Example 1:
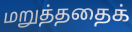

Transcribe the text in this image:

மறுத்ததைக்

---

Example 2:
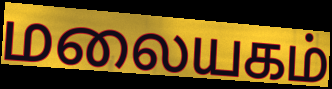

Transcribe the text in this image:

மலையகம்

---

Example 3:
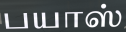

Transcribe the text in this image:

பயாஸ்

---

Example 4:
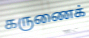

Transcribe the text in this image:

கருணைக்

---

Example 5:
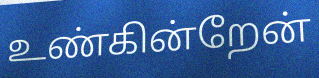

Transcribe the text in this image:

உண்கின்றேன்